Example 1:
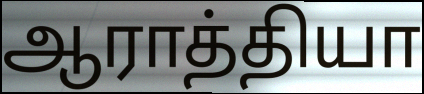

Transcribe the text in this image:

ஆராத்தியா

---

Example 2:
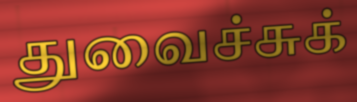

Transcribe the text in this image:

துவைச்சுக்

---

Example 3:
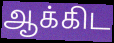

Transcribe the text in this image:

ஆக்கிட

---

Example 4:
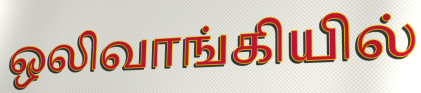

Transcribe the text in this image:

ஒலிவாங்கியில்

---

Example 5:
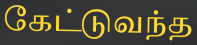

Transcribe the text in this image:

கேட்டுவந்த